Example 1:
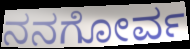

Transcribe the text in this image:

ನನಗೋರ್ವ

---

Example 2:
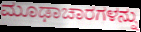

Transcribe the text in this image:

ಮೂಢಾಚಾರಗಳನ್ನು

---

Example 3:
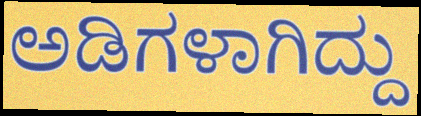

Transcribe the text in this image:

ಅಡಿಗಳಾಗಿದ್ದು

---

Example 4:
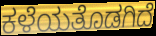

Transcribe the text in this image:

ಕಳೆಯತೊಡಗಿದೆ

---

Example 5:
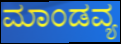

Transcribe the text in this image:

ಮಾಂಡವ್ಯ